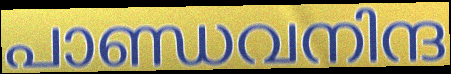
പാണ്ഡവനിന്ദ